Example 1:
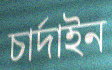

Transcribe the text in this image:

চাৰ্দাইন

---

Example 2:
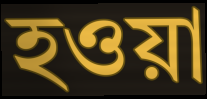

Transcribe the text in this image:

হওয়া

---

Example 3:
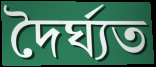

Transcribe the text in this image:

দৈৰ্ঘ্যত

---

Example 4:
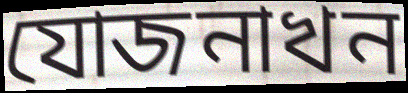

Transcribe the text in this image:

যোজনাখন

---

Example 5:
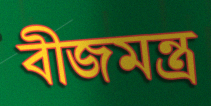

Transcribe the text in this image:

বীজমন্ত্ৰ